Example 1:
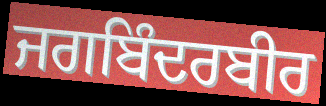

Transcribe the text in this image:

ਜਗਬਿੰਦਰਬੀਰ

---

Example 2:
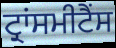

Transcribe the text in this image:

ਟ੍ਰਾਂਸਮੀਟੈਂਸ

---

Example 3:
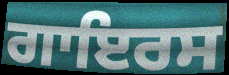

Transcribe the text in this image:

ਗਾਇਰਸ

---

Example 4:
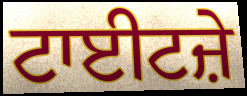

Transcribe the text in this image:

ਟਾਈਟਜ਼ੇ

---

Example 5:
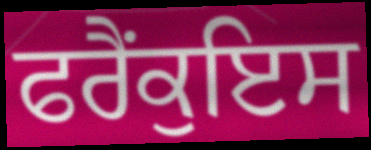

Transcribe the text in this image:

ਫਰੈਂਕੁਇਸ